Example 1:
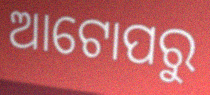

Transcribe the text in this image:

ଆଟୋପରୁ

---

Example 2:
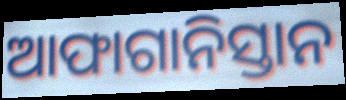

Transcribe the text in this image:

ଆଫାଗାନିସ୍ତାନ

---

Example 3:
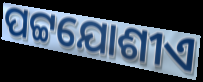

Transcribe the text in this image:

ପଟ୍ଟଯୋଶୀଏ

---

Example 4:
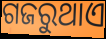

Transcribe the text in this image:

ଗଜରୁଥାଏ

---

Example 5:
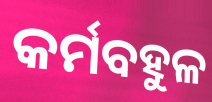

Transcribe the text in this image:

କର୍ମବହୁଳ